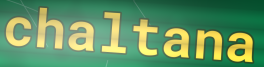
chaltana